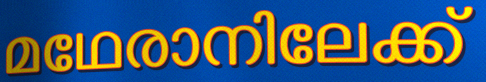
മഥേരാനിലേക്ക്